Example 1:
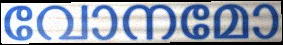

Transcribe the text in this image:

വോനമോ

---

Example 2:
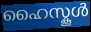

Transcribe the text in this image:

ഹൈസ്കൂൾ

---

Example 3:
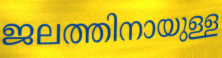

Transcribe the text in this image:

ജലത്തിനായുള്ള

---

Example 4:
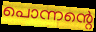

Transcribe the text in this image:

പൊന്നന്റെ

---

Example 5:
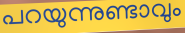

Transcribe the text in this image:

പറയുന്നുണ്ടാവും